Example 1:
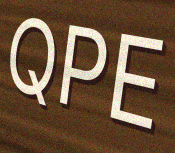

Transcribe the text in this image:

QPE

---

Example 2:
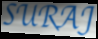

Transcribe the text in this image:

SURAJ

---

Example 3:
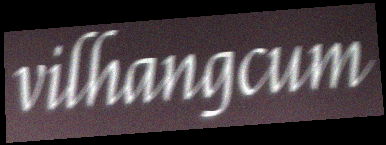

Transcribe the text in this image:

vilhangcum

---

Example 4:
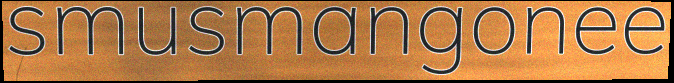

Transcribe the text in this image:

smusmangonee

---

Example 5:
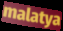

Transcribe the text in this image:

malatya